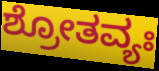
ಶ್ರೋತವ್ಯಃ